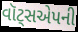
વૉટ્સએપની